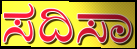
ಸದಿಸಾ